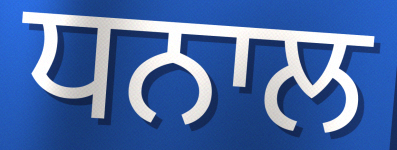
ਧਨਾਲ